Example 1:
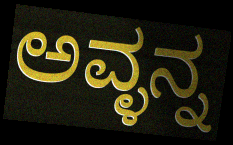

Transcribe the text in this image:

ಅವ್ಳನ್ನ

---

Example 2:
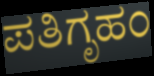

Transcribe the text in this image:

ಪತಿಗೃಹಂ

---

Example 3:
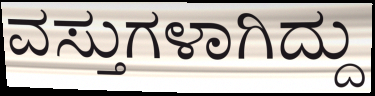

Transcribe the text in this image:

ವಸ್ತುಗಳಾಗಿದ್ದು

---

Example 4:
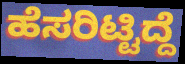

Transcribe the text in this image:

ಹೆಸರಿಟ್ಟಿದ್ದೆ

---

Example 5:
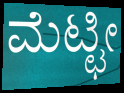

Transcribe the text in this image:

ಮೆಟ್ಟೀ